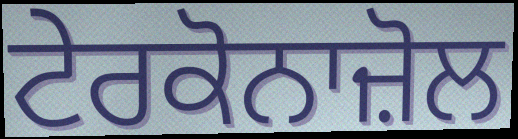
ਟੇਰਕੋਨਾਜ਼ੋਲ